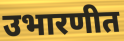
उभारणीत